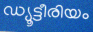
ഡ്യൂട്ടീരിയം